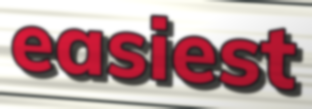
easiest